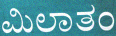
ಮಿಲಾತಂ